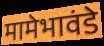
मामेभावंडे